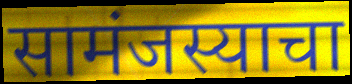
सामंजस्याचा